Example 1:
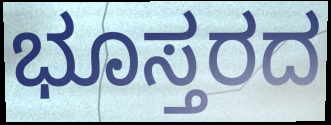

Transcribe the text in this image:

ಭೂಸ್ತರದ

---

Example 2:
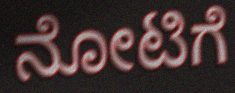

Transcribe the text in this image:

ನೋಟಿಗೆ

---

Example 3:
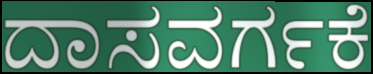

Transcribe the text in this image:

ದಾಸವರ್ಗಕೆ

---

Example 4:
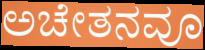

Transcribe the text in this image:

ಅಚೇತನವೂ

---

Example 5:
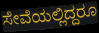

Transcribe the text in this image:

ಸೇವೆಯಲ್ಲಿದ್ದರೂ